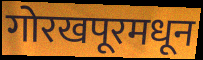
गोरखपूरमधून